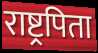
राष्ट्रपिता